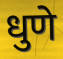
धुणे